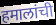
हमालांची